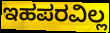
ಇಹಪರವಿಲ್ಲ